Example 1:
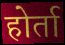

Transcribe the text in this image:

होर्ता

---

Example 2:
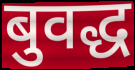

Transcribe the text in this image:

बुवद्ध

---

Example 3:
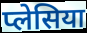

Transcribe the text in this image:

प्लेसिया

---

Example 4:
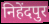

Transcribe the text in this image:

निहेंदपुर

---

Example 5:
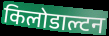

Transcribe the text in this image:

किलोडाल्टन